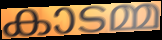
കാടമ്മ